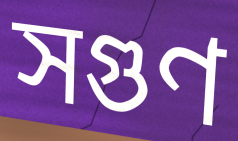
সগুণ